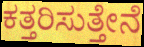
ಕತ್ತರಿಸುತ್ತೇನೆ